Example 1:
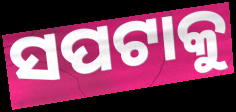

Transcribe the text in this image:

ସପଟାକୁ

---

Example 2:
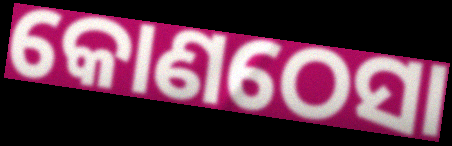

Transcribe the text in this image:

କୋଣଠେସା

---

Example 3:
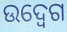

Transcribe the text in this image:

ଉଦ୍ବେଗ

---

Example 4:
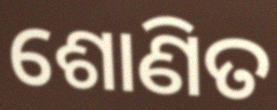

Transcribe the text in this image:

ଶୋଣିତ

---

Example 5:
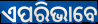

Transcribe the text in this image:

ଏପରିଭାବେ